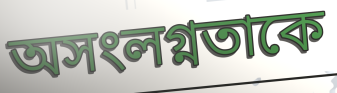
অসংলগ্নতাকে